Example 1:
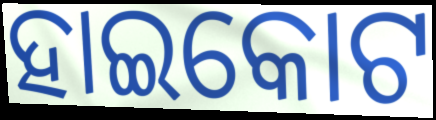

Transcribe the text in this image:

ହାଇକୋଟ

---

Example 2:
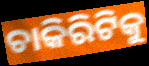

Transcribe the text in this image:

ଚାକିରିଟିକୁ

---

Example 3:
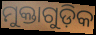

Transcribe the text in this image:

ମୁକ୍ତାଗୁଡ଼ିକ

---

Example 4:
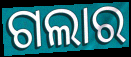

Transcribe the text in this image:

ଗଲାର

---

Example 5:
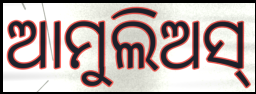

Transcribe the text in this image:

ଆମୁଲିଅସ୍